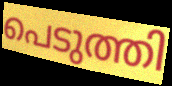
പെടുത്തി